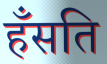
हँसति